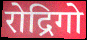
रोद्रिगो